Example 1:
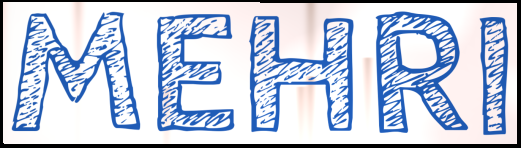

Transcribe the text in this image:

MEHRI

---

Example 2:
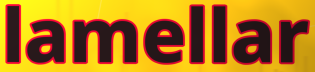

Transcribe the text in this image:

lamellar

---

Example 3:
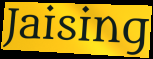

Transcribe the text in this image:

Jaising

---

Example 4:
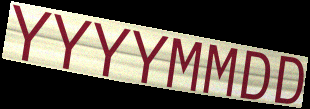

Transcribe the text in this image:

YYYYMMDD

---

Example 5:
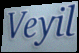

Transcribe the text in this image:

Veyil